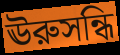
ঊরুসন্ধি